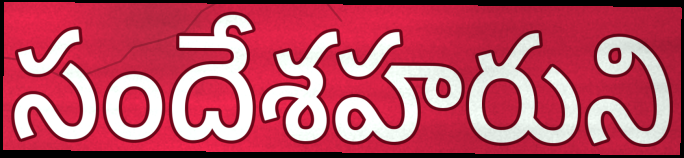
సందేశహరుని